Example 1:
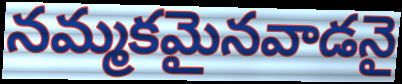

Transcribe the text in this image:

నమ్మకమైనవాడనై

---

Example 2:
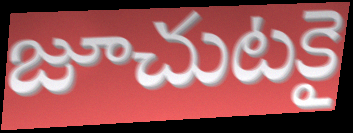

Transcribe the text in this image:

జూచుటకై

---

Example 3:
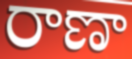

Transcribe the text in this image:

రాణా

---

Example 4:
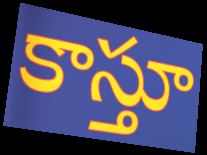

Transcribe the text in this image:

కాస్తూ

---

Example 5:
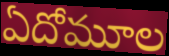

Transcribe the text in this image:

ఏదోమూల